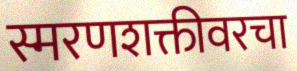
स्मरणशक्तीवरचा